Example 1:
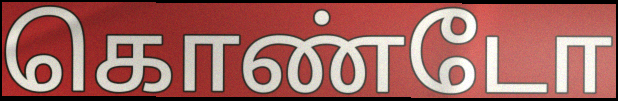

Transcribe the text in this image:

கொண்டோ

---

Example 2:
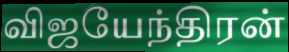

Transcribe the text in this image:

விஜயேந்திரன்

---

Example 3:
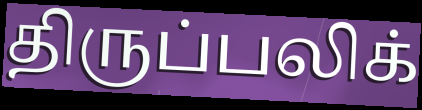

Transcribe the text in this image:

திருப்பலிக்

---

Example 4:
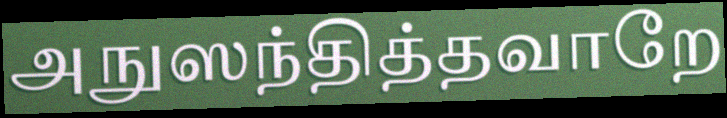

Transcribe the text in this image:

அநுஸந்தித்தவாறே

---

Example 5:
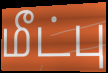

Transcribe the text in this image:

மீட்பு